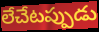
లేచేటప్పుడు